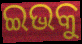
ଇଭକୁ